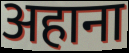
अहाना